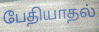
பேதியாதல்